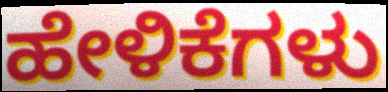
ಹೇಳಿಕೆಗಳು